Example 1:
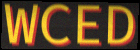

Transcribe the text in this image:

WCED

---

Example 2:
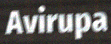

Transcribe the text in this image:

Avirupa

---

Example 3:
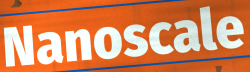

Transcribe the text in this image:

Nanoscale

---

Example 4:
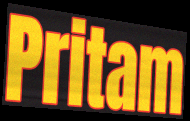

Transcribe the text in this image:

Pritam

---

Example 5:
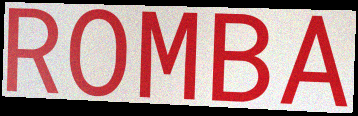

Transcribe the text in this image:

ROMBA